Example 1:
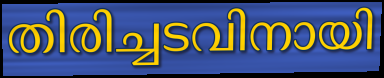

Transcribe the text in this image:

തിരിച്ചടവിനായി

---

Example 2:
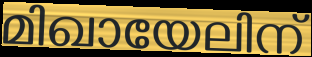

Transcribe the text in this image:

മിഖായേലിന്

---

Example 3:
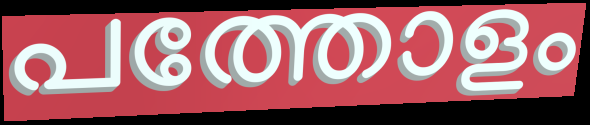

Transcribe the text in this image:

പത്തോളം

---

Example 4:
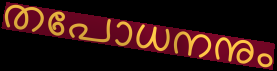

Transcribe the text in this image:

തപോധനനും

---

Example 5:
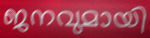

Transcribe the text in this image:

ജനവുമായി